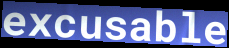
excusable